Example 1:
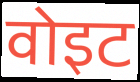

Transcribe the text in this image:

वोइट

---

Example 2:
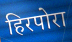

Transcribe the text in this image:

हिरपोरा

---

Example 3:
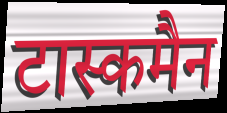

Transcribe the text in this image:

टास्कमैन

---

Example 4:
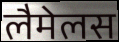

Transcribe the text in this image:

लैमेलस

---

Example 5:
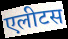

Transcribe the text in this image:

एलीटस